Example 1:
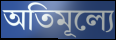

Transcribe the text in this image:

অতিমূল্যে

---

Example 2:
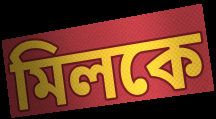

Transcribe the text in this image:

মিলকে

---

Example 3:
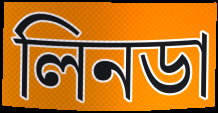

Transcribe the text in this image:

লিনডা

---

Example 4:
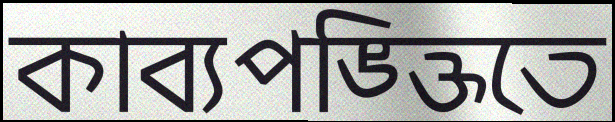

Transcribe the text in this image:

কাব্যপঙ্ক্তিতে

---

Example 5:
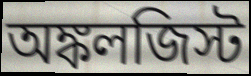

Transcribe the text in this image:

অঙ্কলজিস্ট